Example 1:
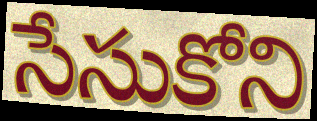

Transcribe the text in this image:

సేసుకోని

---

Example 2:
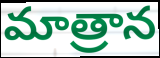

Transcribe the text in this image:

మాత్రాన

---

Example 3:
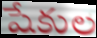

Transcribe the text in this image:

షేకుల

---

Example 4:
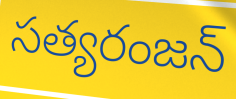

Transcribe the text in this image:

సత్యరంజన్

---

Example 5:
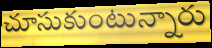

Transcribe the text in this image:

చూసుకుంటున్నారు